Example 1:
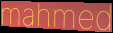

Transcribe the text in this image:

mahmed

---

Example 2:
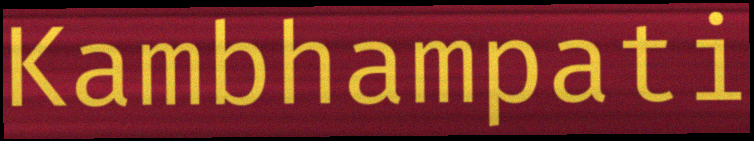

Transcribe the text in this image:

Kambhampati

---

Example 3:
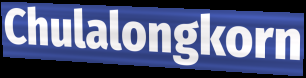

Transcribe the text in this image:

Chulalongkorn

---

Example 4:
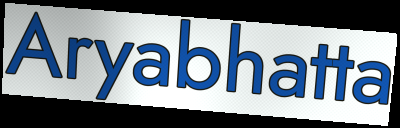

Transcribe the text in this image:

Aryabhatta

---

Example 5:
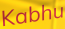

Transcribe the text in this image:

Kabhu